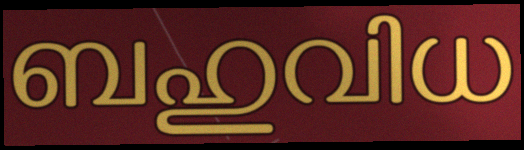
ബഹുവിധ